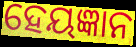
ହେୟଜ୍ଞାନ